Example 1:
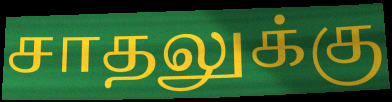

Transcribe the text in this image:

சாதலுக்கு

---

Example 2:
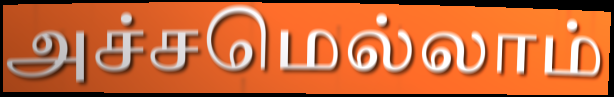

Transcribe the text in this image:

அச்சமெல்லாம்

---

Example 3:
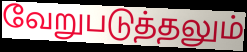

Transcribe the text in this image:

வேறுபடுத்தலும்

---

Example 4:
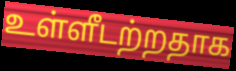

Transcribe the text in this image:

உள்ளீடற்றதாக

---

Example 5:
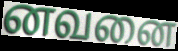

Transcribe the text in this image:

னவனை